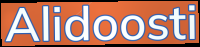
Alidoosti